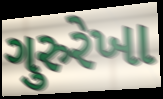
ગુરુરેખા